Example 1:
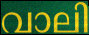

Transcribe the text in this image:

വാലി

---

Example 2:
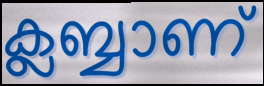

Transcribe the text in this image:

ക്ലബ്ബാണ്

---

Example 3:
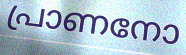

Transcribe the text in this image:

പ്രാണനോ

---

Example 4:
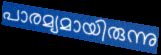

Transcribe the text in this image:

പാരമ്യമായിരുന്നു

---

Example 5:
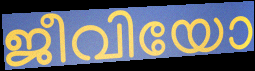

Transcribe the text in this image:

ജീവിയോ